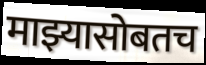
माझ्यासोबतच